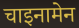
चाइनामेन